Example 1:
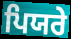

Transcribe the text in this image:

ਪਿਯਰੇ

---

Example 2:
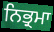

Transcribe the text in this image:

ਨਿਭ੍ਰਮਾ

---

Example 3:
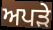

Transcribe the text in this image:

ਅਪੜੇ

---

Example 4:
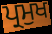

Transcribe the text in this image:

ਪ੍ਰਮੁਖ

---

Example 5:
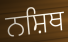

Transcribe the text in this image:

ਨਸ਼ਿਥ